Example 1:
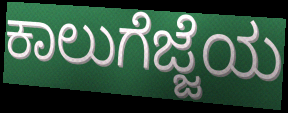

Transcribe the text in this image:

ಕಾಲುಗೆಜ್ಜೆಯ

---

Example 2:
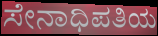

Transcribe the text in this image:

ಸೇನಾಧಿಪತಿಯ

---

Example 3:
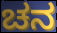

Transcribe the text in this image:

ಚನ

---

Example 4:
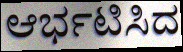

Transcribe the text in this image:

ಆರ್ಭಟಿಸಿದ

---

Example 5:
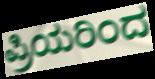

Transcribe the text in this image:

ಪ್ರಿಯರಿಂದ